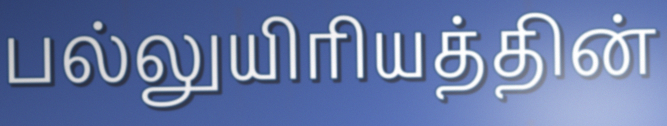
பல்லுயிரியத்தின்